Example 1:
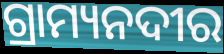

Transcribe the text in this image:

ଗ୍ରାମ୍ୟନଦୀର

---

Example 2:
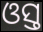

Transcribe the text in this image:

ଓସ୍ତ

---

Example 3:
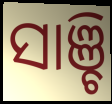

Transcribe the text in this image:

ସାଞ୍ଚି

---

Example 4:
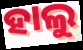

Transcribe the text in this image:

ହାଲୁ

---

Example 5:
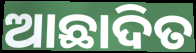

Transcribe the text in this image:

ଆଛାଦିତ